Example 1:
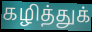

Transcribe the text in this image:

கழித்துக்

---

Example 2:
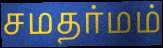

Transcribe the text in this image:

சமதர்மம்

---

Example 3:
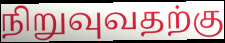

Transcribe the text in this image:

நிறுவுவதற்கு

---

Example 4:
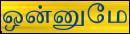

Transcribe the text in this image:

ஒன்னுமே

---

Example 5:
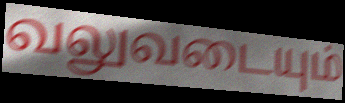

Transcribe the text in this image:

வலுவடையும்